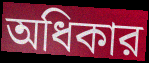
অধিকার